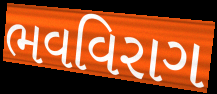
ભવવિરાગ